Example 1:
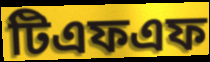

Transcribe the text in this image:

টিএফএফ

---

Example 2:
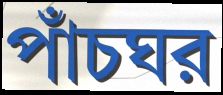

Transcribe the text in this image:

পাঁচঘর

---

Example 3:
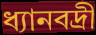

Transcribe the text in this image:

ধ্যানবদ্রী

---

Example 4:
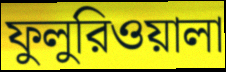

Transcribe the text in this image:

ফুলুরিওয়ালা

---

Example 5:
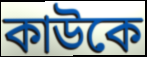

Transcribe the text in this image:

কাউকে